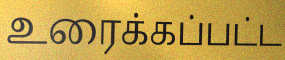
உரைக்கப்பட்ட